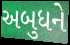
અબુધને